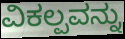
ವಿಕಲ್ಪವನ್ನು